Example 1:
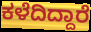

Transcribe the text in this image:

ಕಳೆದಿದ್ದಾರೆ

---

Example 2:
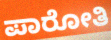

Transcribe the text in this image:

ಪಾರೋತಿ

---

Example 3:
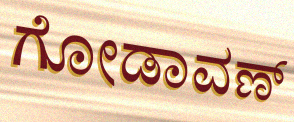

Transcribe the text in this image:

ಗೋಡಾವಣ್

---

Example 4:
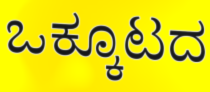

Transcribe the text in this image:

ಒಕ್ಕೂಟದ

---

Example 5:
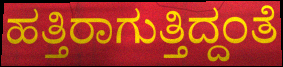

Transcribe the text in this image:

ಹತ್ತಿರಾಗುತ್ತಿದ್ದಂತೆ